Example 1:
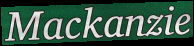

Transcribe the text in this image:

Mackanzie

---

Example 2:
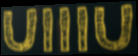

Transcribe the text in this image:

UIIIU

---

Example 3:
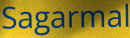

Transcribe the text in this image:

Sagarmal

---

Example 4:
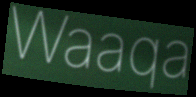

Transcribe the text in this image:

Waaqa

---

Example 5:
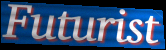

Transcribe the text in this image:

Futurist